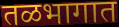
तळभागात